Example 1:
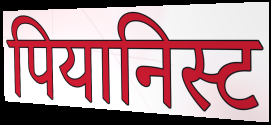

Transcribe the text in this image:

पियानिस्ट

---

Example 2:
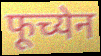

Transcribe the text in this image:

फूच्येन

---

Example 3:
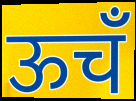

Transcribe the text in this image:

ऊचँ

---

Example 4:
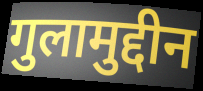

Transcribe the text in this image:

गुलामुद्दीन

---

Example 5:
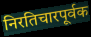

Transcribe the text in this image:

निरतिचारपूर्वक